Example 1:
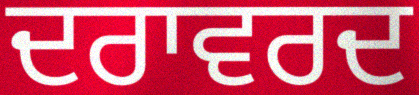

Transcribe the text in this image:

ਦਰਾਵਰਦ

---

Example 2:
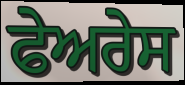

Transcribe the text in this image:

ਫੇਅਰੇਸ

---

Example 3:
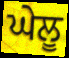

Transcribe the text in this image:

ਘੇਲੂ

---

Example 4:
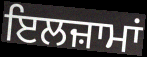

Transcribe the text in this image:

ਇਲਜ਼ਾਮਾਂ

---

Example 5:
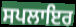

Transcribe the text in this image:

ਸਪਲਾਇਰ